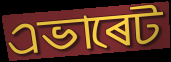
এভাৰেট